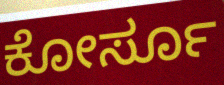
ಕೋರ್ಸೂ